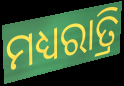
ମଧ୍ଯରାତ୍ରି